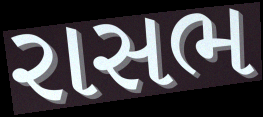
રાસભ